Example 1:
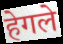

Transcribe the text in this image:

हेगले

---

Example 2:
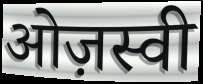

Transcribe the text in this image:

ओज़स्वी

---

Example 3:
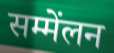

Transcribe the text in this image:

सम्मेंलन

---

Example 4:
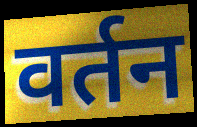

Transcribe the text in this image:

वर्तन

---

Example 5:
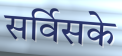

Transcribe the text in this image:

सर्विसके